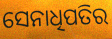
ସେନାଧିପତିର